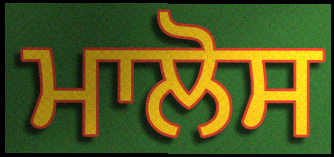
ਮਾਲੋਸ